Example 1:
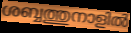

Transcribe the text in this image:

ശബ്ബത്തുനാളിൽ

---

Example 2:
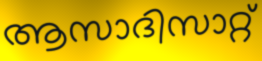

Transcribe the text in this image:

ആസാദിസാറ്റ്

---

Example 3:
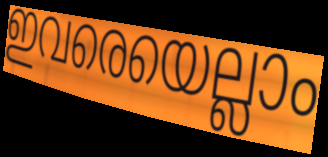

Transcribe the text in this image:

ഇവരെയെല്ലാം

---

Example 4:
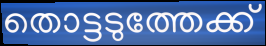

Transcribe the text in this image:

തൊട്ടടുത്തേക്ക്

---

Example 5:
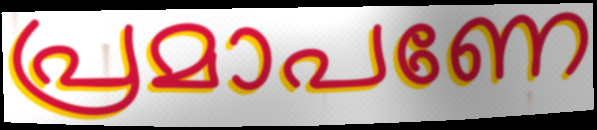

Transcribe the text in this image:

പ്രമാപണേ